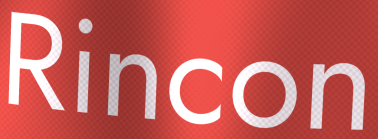
Rincon